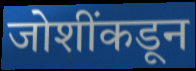
जोशींकडून